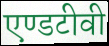
एण्डटीवी